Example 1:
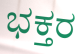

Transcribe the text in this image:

ಭಕ್ತರ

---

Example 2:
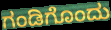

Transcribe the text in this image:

ಗಂಡಿಗೊಂದು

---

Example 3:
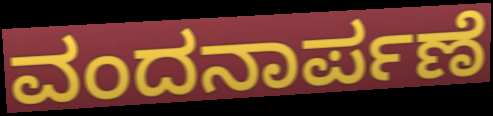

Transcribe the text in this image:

ವಂದನಾರ್ಪಣೆ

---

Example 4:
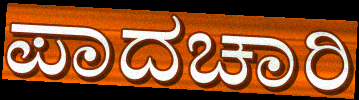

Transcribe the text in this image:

ಪಾದಚಾರಿ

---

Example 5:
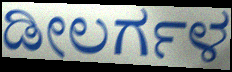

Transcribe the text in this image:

ಡೀಲರ್ಗಳ